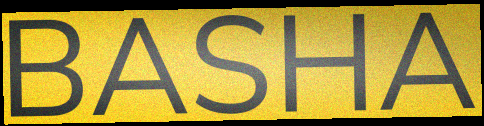
BASHA